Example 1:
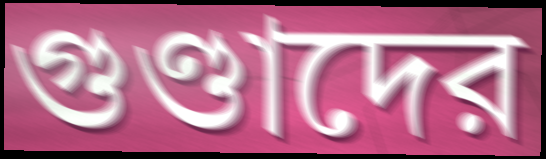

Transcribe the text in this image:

গুণ্ডাদের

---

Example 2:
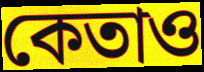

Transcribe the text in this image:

কেতাও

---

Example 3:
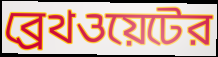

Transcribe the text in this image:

ব্রেথওয়েটের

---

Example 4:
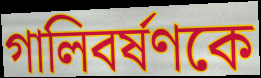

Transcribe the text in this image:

গালিবর্ষণকে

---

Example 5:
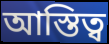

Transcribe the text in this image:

আস্তিত্ব